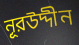
নূরউদ্দীন